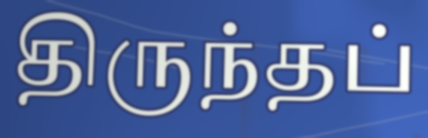
திருந்தப்